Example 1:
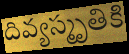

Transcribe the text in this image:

దివ్యస్మృతికి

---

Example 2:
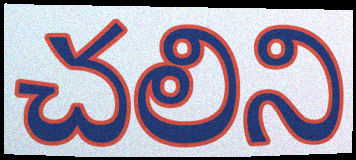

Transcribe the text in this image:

చలిని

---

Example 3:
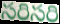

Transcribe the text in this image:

సరిసరి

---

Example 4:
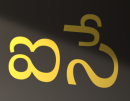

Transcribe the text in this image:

ఐసే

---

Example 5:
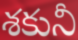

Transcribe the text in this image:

శకునీ